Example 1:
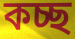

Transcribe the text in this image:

কচ্ছ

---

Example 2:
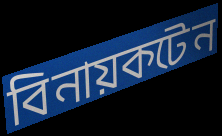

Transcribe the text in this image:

বিনায়কটেন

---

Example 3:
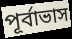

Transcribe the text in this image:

পূৰ্বাভাস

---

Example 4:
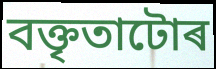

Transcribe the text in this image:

বক্তৃতাটোৰ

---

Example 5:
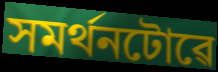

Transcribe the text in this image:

সমৰ্থনটোৱে